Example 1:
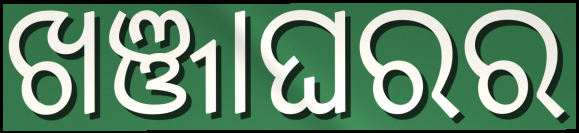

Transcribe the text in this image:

ଖଞ୍ଜାଘରର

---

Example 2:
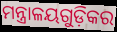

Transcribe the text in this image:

ମନ୍ତ୍ରାଳୟଗୁଡ଼ିକର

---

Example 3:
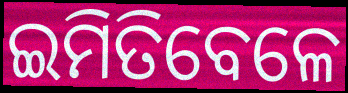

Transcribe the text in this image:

ଇମିତିବେଳେ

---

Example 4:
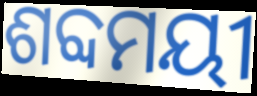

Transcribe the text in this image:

ଶବ୍ଦମୟୀ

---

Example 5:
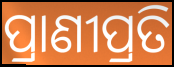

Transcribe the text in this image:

ପ୍ରାଣୀପ୍ରତି